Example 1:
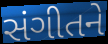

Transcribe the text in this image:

સંગીતને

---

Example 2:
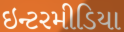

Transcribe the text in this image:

ઇન્ટરમીડિયા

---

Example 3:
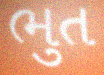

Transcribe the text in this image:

ભુત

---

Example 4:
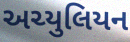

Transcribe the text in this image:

અચ્યુલિયન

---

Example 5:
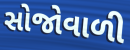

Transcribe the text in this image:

સોજોવાળી